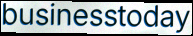
businesstoday